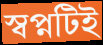
স্বপ্নটিই